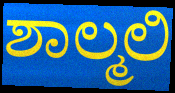
ಶಾಲ್ಮಲಿ